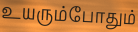
உயரும்போதும்